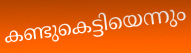
കണ്ടുകെട്ടിയെന്നും